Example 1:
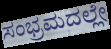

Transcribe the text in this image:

ಸಂಭ್ರಮದಲ್ಲೇ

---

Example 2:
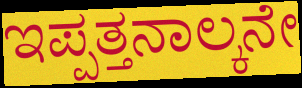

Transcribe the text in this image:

ಇಪ್ಪತ್ತನಾಲ್ಕನೇ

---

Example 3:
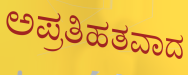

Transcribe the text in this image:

ಅಪ್ರತಿಹತವಾದ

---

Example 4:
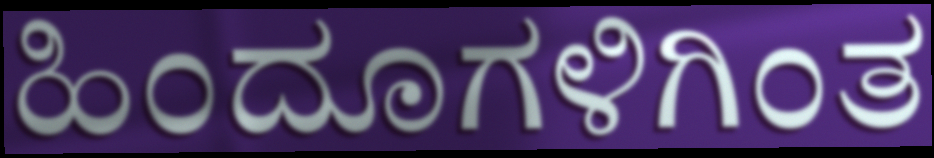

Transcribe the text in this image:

ಹಿಂದೂಗಳಿಗಿಂತ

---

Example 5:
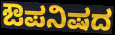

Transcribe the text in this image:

ಔಪನಿಷದ